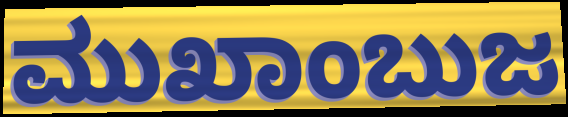
ಮುಖಾಂಬುಜ